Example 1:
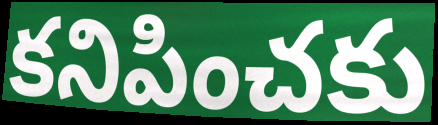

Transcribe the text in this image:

కనిపించకు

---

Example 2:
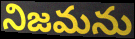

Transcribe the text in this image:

నిజమను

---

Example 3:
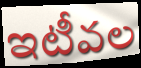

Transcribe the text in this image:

ఇటీవల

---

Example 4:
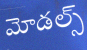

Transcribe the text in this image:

మోడల్స్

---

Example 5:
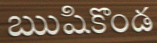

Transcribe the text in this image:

ఋషికొండ